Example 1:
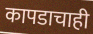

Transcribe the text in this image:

कापडाचाही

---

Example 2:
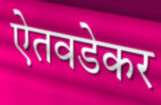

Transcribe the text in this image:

ऐतवडेकर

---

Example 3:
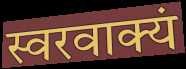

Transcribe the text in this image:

स्वरवाक्यं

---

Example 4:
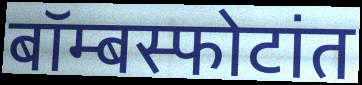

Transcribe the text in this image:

बॉम्बस्फोटांत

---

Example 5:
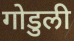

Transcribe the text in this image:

गोडुली